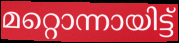
മറ്റൊന്നായിട്ട്